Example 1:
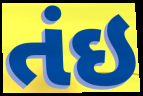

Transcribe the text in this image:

તંઇ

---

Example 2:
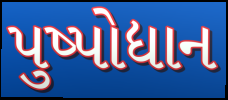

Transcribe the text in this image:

પુષ્પોદ્યાન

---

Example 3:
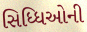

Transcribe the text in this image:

સિધ્ધિઓની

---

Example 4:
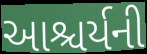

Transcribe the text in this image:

આશ્ચર્યની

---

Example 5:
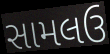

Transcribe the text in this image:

સામલઉ